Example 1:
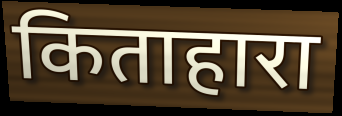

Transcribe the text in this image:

किताहारा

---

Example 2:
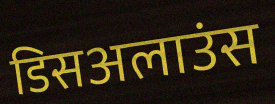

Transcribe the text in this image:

डिसअलाउंस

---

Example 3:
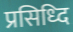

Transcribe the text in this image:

प्रसिध्दि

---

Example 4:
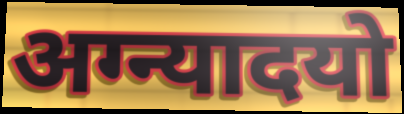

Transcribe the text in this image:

अग्न्यादयो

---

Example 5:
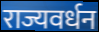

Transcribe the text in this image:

राज्यवर्धन